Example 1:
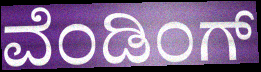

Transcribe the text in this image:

ವೆಂಡಿಂಗ್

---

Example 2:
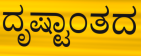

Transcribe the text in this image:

ದೃಷ್ಟಾಂತದ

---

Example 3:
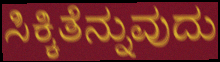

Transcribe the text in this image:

ಸಿಕ್ಕಿತೆನ್ನುವುದು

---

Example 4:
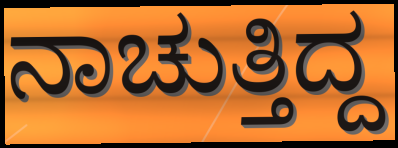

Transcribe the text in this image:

ನಾಚುತ್ತಿದ್ದ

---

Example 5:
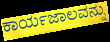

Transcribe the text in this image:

ಕಾರ್ಯಜಾಲವನ್ನು